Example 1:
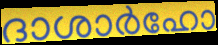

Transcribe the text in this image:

ദാശാർഹോ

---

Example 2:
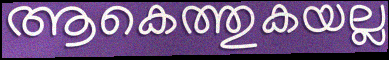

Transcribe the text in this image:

ആകെത്തുകയല്ല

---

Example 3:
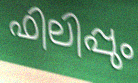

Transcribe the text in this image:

ഫിലിപ്പും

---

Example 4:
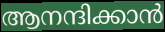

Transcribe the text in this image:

ആനന്ദിക്കാൻ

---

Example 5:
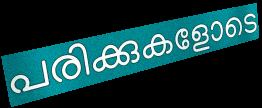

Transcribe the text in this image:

പരിക്കുകളോടെ